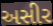
અસીર